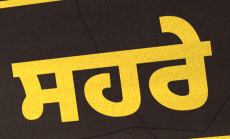
ਸਹਰੇ